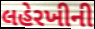
લહેરખીની